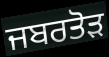
ਜਬਰਤੋੜ